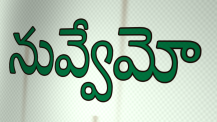
నువ్వేమో